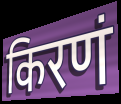
किरणं